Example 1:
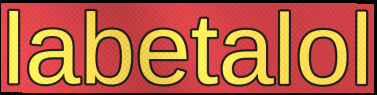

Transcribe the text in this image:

labetalol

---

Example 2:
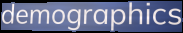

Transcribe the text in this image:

demographics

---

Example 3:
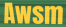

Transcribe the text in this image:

Awsm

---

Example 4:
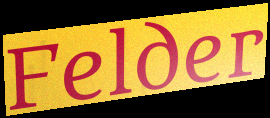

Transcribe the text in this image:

Felder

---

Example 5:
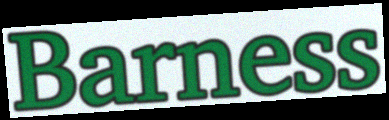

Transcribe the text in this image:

Barness